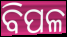
ବିପଳ